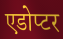
एडोप्टर